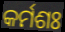
କର୍ମଶଃ